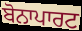
ਬੋਨਾਪਾਰਟ